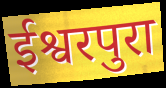
ईश्वरपुरा